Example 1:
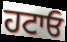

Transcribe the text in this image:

ਹਟਾਓ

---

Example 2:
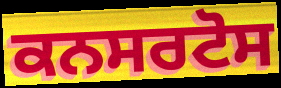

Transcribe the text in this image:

ਕਨਸਰਟੋਸ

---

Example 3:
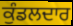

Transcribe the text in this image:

ਕੁੰਡਲਦਾਰ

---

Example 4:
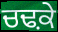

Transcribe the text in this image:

ਚਢ਼ਕੇ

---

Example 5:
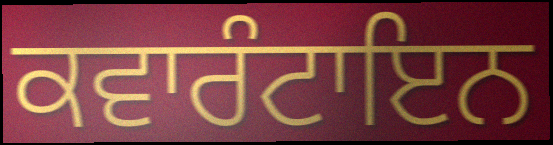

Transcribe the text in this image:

ਕਵਾਰੰਟਾਇਨ